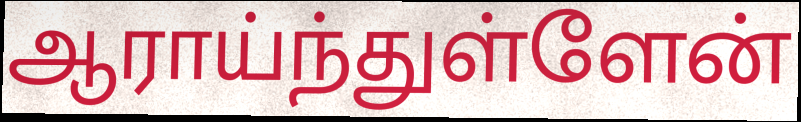
ஆராய்ந்துள்ளேன்